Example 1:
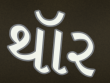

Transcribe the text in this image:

થૉર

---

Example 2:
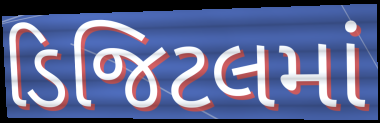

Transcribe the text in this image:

ડિજિટલમાં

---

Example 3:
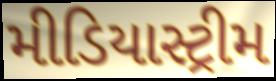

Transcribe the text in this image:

મીડિયાસ્ટ્રીમ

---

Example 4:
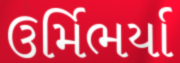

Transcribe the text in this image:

ઉર્મિભર્યા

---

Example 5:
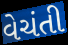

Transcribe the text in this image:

વેચંતી